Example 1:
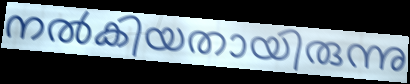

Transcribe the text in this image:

നൽകിയതായിരുന്നു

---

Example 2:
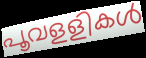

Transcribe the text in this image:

പൂവളളികൾ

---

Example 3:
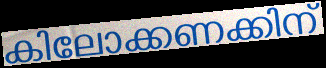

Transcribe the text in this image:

കിലോക്കണക്കിന്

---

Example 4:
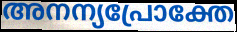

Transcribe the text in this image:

അനന്യപ്രോക്തേ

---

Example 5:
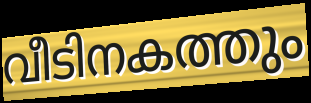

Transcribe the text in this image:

വീടിനകത്തും